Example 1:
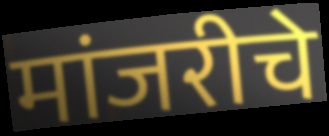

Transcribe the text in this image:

मांजरीचे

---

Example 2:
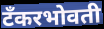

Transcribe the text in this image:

टँकरभोवती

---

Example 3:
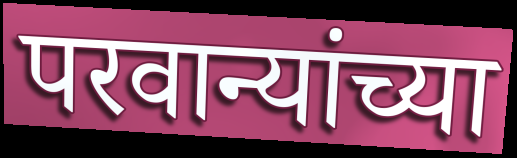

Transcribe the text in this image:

परवान्यांच्या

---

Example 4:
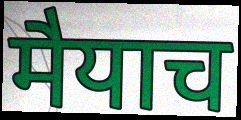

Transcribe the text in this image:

मैयाच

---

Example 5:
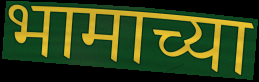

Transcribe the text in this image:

भामाच्या